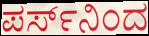
ಪರ್ಸ್‌ನಿಂದ